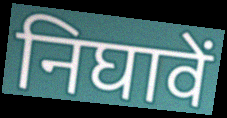
निघावें